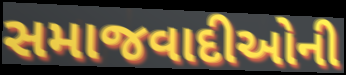
સમાજવાદીઓની